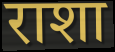
राशा